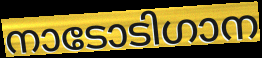
നാടോടിഗാന